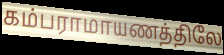
கம்பராமாயணத்திலே